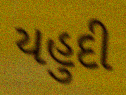
યહુદી